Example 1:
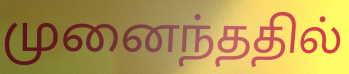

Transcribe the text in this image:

முனைந்ததில்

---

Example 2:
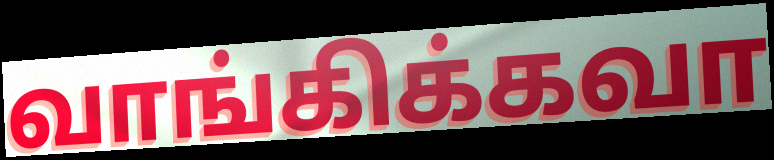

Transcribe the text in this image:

வாங்கிக்கவா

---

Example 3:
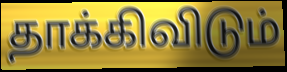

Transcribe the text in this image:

தாக்கிவிடும்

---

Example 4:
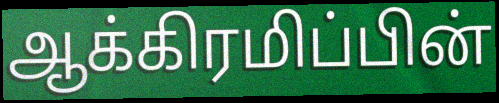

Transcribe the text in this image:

ஆக்கிரமிப்பின்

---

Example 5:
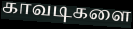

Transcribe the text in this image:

காவடிகளை